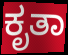
ಕೃತಾ